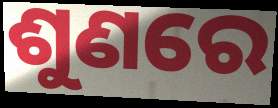
ଶୁଣରେ